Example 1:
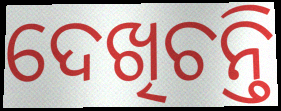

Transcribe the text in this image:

ଦେଖିଚନ୍ତି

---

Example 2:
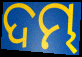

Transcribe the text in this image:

ଦମ୍ଭ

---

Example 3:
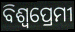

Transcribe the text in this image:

ବିଶ୍ଵପ୍ରେମୀ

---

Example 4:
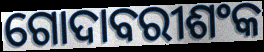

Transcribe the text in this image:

ଗୋଦାବରୀଶଂକ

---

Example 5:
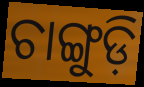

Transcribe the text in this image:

ଚାଙ୍ଗୁଡ଼ି